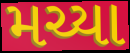
મચ્યા